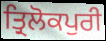
ਤ੍ਰਿਲੋਕਪੁਰੀ